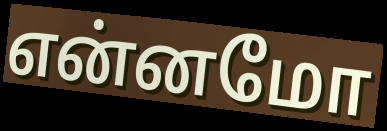
என்னமோ